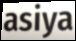
asiya